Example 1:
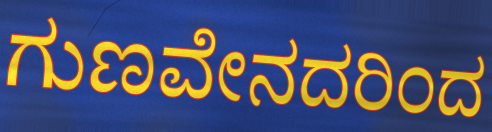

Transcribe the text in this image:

ಗುಣವೇನದರಿಂದ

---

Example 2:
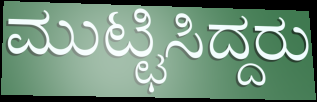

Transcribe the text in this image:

ಮುಟ್ಟಿಸಿದ್ದರು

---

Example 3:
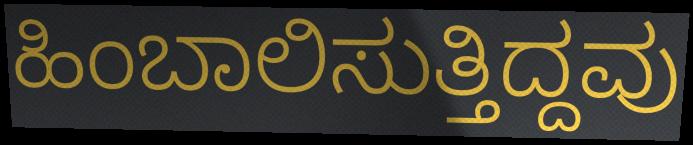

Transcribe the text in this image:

ಹಿಂಬಾಲಿಸುತ್ತಿದ್ದವು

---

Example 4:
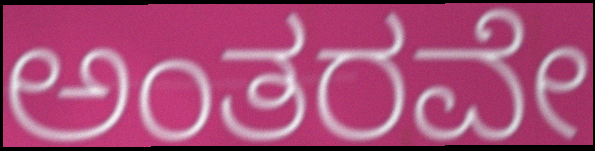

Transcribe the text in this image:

ಅಂತರವೇ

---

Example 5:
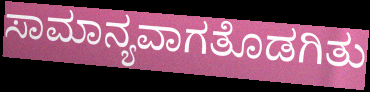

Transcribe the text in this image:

ಸಾಮಾನ್ಯವಾಗತೊಡಗಿತು